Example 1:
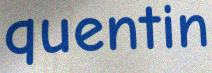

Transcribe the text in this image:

quentin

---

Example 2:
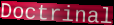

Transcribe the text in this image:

Doctrinal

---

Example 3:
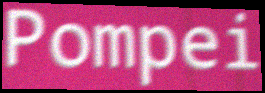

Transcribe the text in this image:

Pompei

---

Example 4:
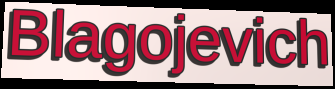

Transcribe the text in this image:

Blagojevich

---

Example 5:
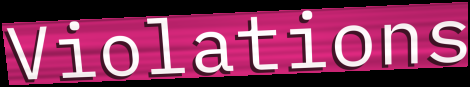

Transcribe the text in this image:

Violations